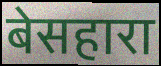
बेसहारा